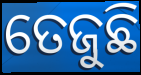
ତେଜୁଛି